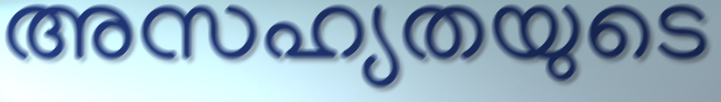
അസഹ്യതയുടെ